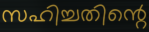
സഹിച്ചതിന്റെ